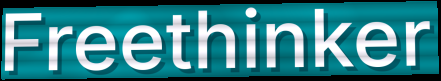
Freethinker